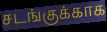
சடங்குக்காக